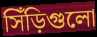
সিঁড়িগুলো